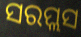
ସରପ୍ଲସ